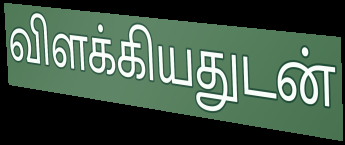
விளக்கியதுடன்